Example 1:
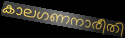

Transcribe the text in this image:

കാലഗണനാരീതി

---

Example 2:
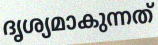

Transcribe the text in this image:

ദൃശ്യമാകുന്നത്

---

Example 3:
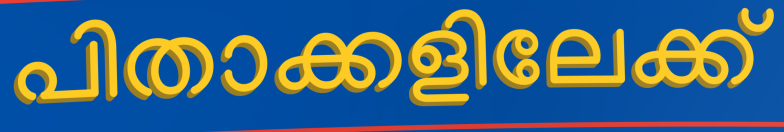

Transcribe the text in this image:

പിതാക്കളിലേക്ക്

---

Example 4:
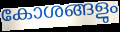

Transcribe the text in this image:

കോശങ്ങളും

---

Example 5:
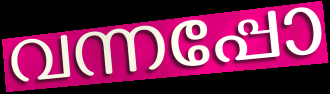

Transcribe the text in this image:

വന്നപ്പോ